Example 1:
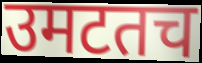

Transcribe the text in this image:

उमटतच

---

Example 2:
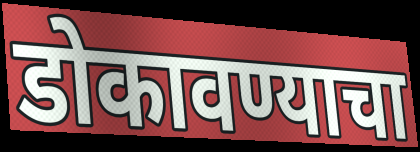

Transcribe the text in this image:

डोकावण्याचा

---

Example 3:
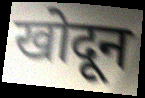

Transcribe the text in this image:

खोदून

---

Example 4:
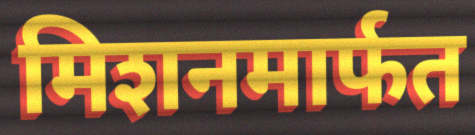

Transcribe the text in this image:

मिशनमार्फत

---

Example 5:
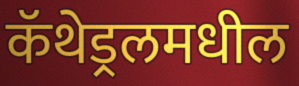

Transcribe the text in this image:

कॅथेड्रलमधील